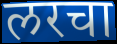
लरचा